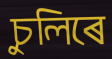
চুলিৰে